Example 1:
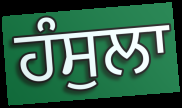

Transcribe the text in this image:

ਹੰਸੁਲਾ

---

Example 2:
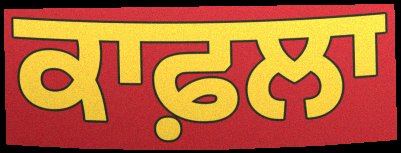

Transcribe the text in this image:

ਕਾਫ਼ਲਾ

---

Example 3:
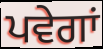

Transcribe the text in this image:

ਪਵੇਗਾਂ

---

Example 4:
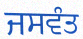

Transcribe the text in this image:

ਜਸਵੰਤ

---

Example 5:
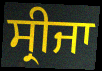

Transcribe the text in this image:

ਸ੍ਰੀਜਾ